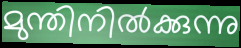
മുന്തിനിൽക്കുന്നു